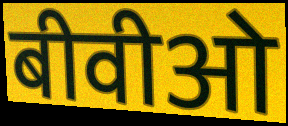
बीवीओ